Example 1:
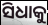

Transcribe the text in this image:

ସିଧାକୁ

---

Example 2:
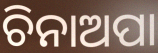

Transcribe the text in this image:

ଚିନାଅପା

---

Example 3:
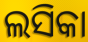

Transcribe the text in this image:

ଲସିକା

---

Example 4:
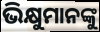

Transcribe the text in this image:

ଭିକ୍ଷୁମାନଙ୍କୁ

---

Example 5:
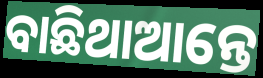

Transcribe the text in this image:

ବାଛିଥାଆନ୍ତେ